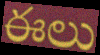
ఈలు